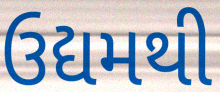
ઉદ્યમથી